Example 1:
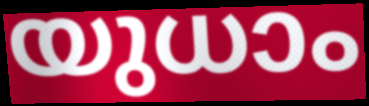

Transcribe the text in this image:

യുധാം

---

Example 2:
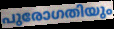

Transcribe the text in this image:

പുരോഗതിയും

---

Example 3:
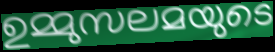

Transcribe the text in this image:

ഉമ്മുസലമയുടെ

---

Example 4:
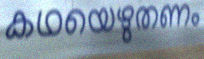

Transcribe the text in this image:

കഥയെഴുതണം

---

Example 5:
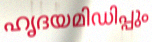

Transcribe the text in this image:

ഹൃദയമിഡിപ്പും